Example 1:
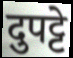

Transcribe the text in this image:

दुपट्टे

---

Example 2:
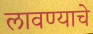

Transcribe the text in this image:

लावण्याचे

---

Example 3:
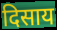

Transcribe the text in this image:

दिसाय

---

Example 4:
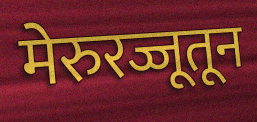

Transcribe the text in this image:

मेरुरज्जूतून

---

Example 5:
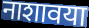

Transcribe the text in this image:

नाशावया